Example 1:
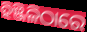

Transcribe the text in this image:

ହିଞ୍ଜିଳିଠାରେ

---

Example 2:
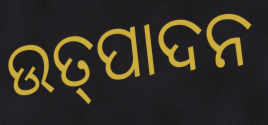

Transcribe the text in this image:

ଉତ୍‍ପାଦନ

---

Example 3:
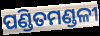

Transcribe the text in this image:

ପଣ୍ଡିତମଣ୍ଡଳୀ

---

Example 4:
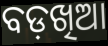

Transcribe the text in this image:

ବଡ଼ଖିଆ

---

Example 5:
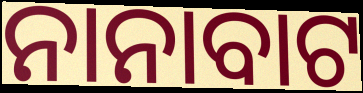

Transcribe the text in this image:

ନାନାବାଟ